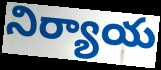
నిర్యాయ